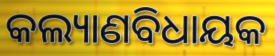
କଲ୍ୟାଣବିଧାୟକ